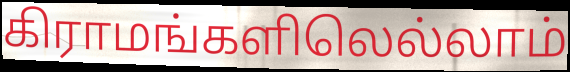
கிராமங்களிலெல்லாம்